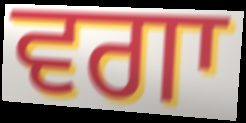
ਵਗਾ